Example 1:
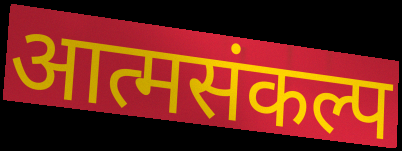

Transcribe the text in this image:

आत्मसंकल्प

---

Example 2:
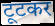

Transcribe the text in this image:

टूटकर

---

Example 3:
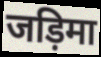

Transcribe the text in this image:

जड़िमा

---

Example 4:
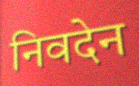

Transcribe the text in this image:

निवदेन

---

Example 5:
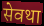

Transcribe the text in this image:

सेवथा